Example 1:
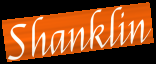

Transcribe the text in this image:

Shanklin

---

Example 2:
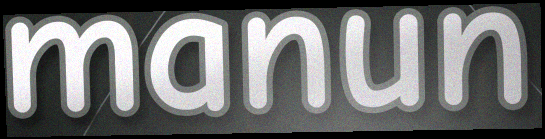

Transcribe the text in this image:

manun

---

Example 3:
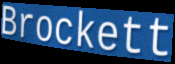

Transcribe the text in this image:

Brockett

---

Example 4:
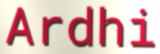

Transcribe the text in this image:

Ardhi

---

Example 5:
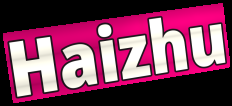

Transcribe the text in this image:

Haizhu